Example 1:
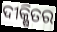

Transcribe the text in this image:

ଦୀକ୍ଷିତର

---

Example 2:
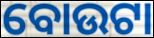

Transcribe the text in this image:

ବୋଉଟା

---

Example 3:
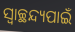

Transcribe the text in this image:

ସ୍ୱାଚ୍ଛନ୍ଦ୍ୟପାଇଁ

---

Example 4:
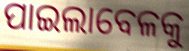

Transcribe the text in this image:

ପାଇଲାବେଳକୁ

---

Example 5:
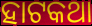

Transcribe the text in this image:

ହାଟକଥା